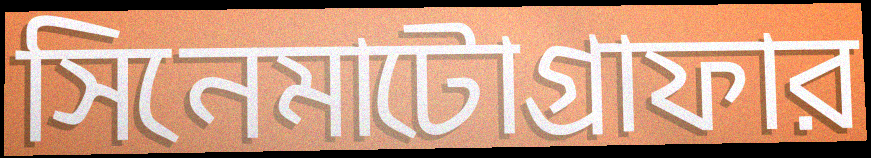
সিনেমাটোগ্রাফার